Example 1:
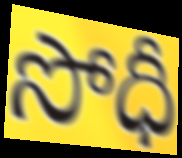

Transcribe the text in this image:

సోధీ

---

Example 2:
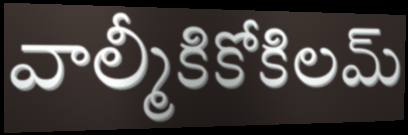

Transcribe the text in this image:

వాల్మీకికోకిలమ్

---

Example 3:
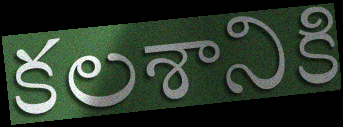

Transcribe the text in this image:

కలశానికి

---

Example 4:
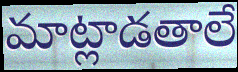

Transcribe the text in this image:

మాట్లాడతాలే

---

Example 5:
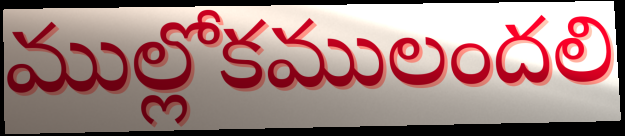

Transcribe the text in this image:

ముల్లోకములందలి